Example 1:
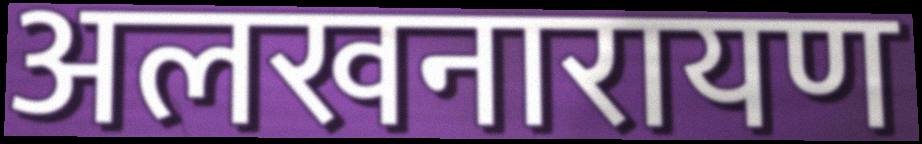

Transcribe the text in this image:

अलखनारायण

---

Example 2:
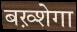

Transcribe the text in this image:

बख़्शेगा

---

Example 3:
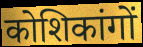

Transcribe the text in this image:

कोशिकांगों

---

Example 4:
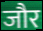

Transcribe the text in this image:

जौर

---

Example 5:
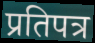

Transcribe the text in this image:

प्रतिपत्र